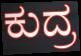
ಕುದ್ರ